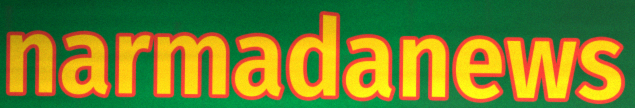
narmadanews